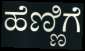
ಹೆಣ್ಣಿಗೆ